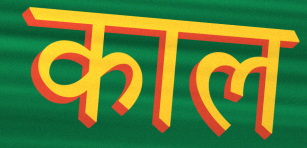
काल